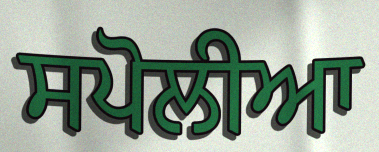
ਸਪੋਲੀਆ